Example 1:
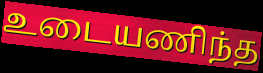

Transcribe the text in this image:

உடையணிந்த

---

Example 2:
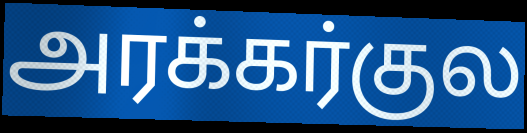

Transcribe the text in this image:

அரக்கர்குல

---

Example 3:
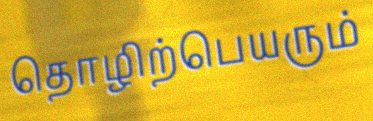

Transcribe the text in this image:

தொழிற்பெயரும்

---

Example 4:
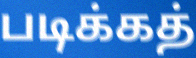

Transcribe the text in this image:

படிக்கத்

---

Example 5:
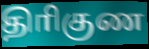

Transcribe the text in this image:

திரிகுண